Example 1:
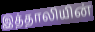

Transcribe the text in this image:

இத்தாலியின்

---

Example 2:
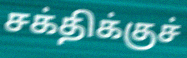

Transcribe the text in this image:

சக்திக்குச்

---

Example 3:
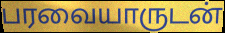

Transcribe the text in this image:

பரவையாருடன்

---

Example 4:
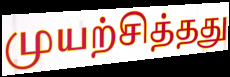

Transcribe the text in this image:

முயற்சித்தது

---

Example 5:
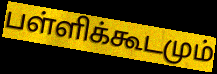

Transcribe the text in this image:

பள்ளிக்கூடமும்